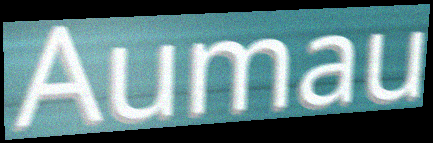
Aumau